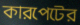
কারপেটের